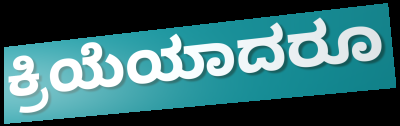
ಕ್ರಿಯೆಯಾದರೂ